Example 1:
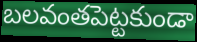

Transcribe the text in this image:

బలవంతపెట్టకుండా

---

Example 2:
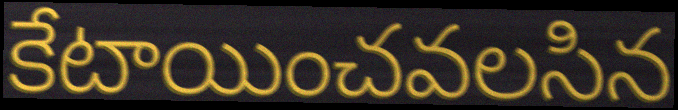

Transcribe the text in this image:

కేటాయించవలసిన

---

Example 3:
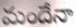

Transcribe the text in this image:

మందేనా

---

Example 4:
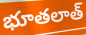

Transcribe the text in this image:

భూతలాత్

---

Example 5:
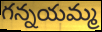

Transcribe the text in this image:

గన్నయమ్మ